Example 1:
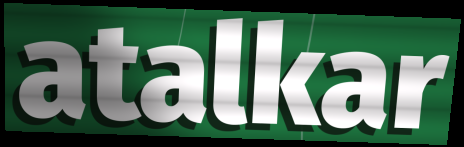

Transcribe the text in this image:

atalkar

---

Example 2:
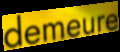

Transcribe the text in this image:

demeure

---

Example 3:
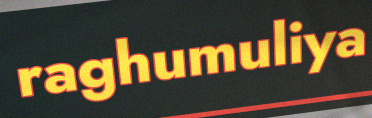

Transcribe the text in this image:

raghumuliya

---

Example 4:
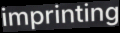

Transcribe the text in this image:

imprinting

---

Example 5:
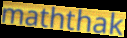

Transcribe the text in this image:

maththak